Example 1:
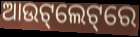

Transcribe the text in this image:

ଆଉଟ୍‌ଲେଟ୍‌ରେ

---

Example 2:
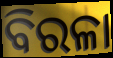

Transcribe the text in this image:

ବିରଳା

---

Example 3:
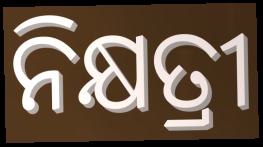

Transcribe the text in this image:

ନିକ୍ଷତ୍ରୀ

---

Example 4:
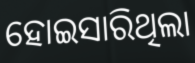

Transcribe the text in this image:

ହୋଇସାରିଥିଲା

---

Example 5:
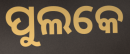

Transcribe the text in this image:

ପୁଲକେ